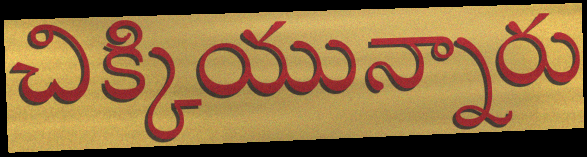
చిక్కియున్నారు